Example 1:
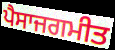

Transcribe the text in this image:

ਪੈਸਾਜਗਮੀਤ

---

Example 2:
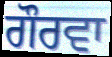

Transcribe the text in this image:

ਗੌਰਵਾ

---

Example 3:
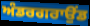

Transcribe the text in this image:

ਅੰਡਰਗਰਾਉਂਡ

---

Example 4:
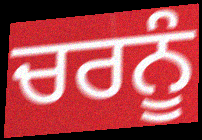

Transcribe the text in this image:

ਚਰਨੂੰ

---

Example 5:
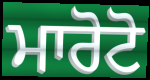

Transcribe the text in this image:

ਮਾਰੋਟੋ